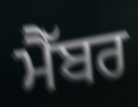
ਮੈੱਬਰ